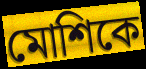
মোশিকে